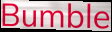
Bumble